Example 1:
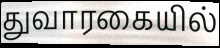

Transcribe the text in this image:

துவாரகையில்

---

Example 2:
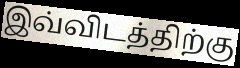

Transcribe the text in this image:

இவ்விடத்திற்கு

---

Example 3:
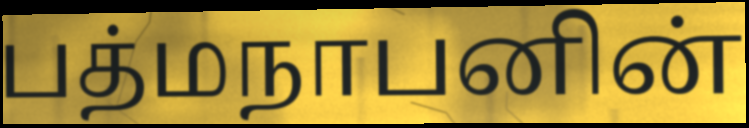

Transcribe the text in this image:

பத்மநாபனின்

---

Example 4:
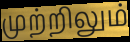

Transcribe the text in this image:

முற்றிலும்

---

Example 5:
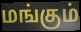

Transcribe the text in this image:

மங்கும்